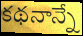
కథనాన్నే